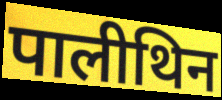
पालीथिन